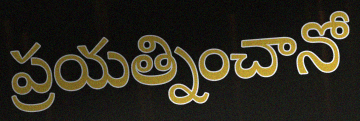
ప్రయత్నించానో